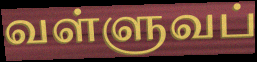
வள்ளுவப்